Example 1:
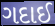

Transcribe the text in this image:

ગદાઈ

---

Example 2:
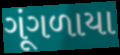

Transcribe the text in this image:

ગૂંગળાયા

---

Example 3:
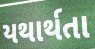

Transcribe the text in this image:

યથાર્થતા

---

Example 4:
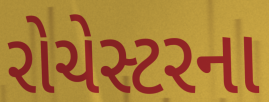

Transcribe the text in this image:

રોચેસ્ટરના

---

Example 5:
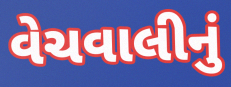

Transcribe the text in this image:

વેચવાલીનું